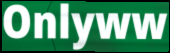
Onlyww